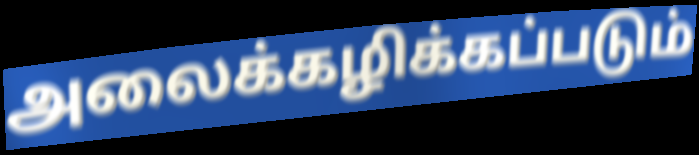
அலைக்கழிக்கப்படும்